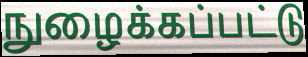
நுழைக்கப்பட்டு